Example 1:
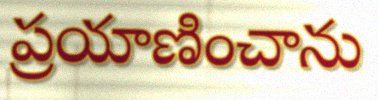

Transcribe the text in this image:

ప్రయాణించాను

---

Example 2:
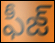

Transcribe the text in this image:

ఫీజ్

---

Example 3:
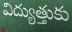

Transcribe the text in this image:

విద్యుత్తుకు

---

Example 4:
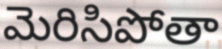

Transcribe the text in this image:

మెరిసిపోతా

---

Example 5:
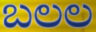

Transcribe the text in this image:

బలల